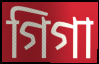
গিগা